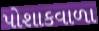
પોશાકવાળા